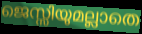
ജെസ്സിയുമല്ലാതെ